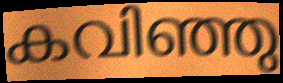
കവിഞ്ഞു